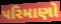
પરિમાણો